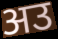
अउ